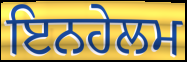
ਇਨਹੇਲਮ